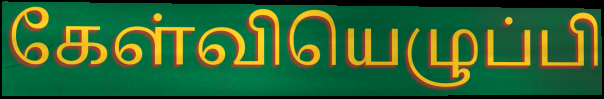
கேள்வியெழுப்பி